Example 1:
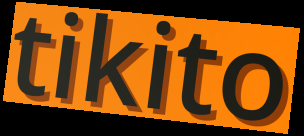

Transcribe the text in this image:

tikito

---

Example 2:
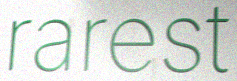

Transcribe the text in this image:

rarest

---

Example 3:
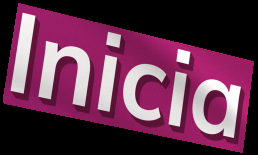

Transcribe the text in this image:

Inicia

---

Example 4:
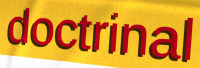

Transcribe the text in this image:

doctrinal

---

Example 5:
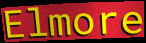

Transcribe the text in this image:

Elmore